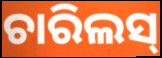
ଚାରିଲସ୍